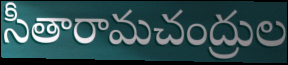
సీతారామచంద్రుల